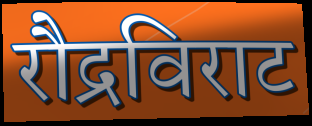
रौद्रविराट